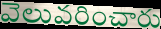
వెలువరించారు